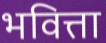
भवित्ता